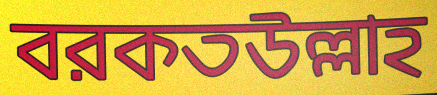
বরকতউল্লাহ